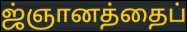
ஜ்ஞானத்தைப்